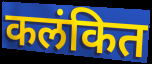
कलंकित